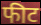
फीट